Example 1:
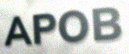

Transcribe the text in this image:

APOB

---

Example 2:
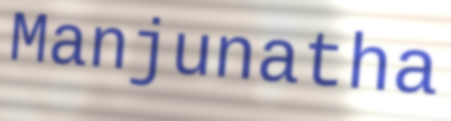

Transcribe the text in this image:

Manjunatha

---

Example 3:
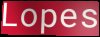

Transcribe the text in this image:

Lopes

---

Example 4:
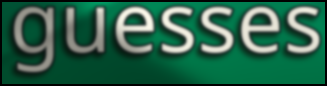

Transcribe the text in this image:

guesses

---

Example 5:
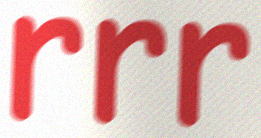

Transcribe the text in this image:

rrr